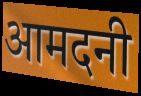
आमदनी